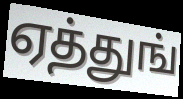
ஏத்துங்